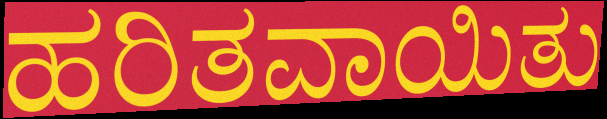
ಹರಿತವಾಯಿತು